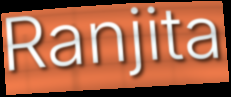
Ranjita